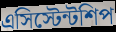
এসিস্টেন্টশিপ